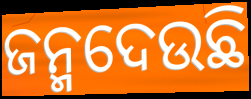
ଜନ୍ମଦେଉଛି